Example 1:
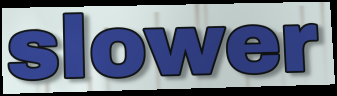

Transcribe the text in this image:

slower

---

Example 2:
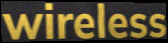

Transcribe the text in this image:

wireless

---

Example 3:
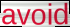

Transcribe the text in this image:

avoid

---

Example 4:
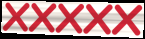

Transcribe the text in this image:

xxxxx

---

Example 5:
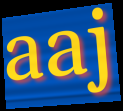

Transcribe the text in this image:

aaj